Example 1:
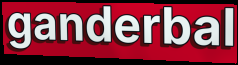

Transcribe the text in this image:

ganderbal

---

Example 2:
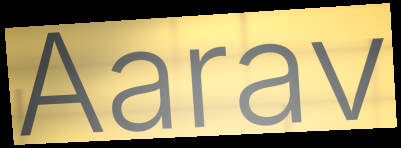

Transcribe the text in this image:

Aarav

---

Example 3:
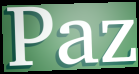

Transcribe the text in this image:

Paz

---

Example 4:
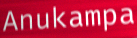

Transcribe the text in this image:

Anukampa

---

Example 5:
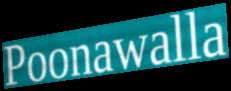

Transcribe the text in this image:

Poonawalla